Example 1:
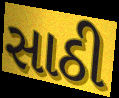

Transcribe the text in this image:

સાઠી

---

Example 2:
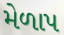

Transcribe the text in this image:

મેળાપ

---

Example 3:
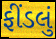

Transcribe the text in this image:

ફીંડલું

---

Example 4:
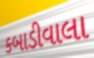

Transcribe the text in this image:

કબાડીવાલા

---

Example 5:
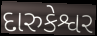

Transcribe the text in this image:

દારુકેશ્વર